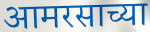
आमरसाच्या